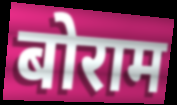
बोराम